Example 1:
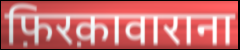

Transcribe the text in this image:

फ़िरक़ावाराना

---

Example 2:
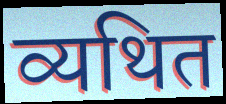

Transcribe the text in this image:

व्यथित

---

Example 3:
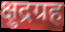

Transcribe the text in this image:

क्षुद्रग्रह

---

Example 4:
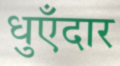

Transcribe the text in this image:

धुएँदार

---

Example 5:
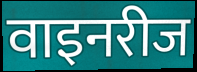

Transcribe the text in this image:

वाइनरीज